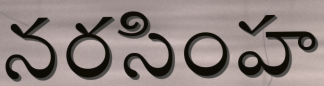
నరసింహ